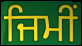
ਜਿਮੀਂ